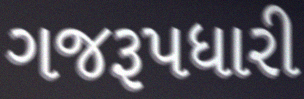
ગજરૂપધારી